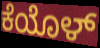
ಕೆಯೊಳ್